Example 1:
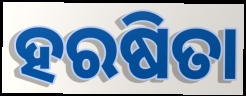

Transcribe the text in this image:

ହରଷିତା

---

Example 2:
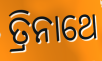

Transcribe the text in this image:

ତ୍ରିନାଥେ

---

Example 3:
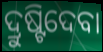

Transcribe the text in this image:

ଦ୍ରୁଷ୍ଟିଦେବା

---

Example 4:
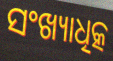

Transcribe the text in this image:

ସଂଖ୍ୟାଧିତ୍କ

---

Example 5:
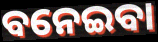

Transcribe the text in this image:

ବନେଇବା